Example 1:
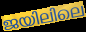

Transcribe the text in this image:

ജയിലിലെ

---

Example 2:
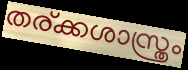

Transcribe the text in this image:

തര്ക്കശാസ്ത്രം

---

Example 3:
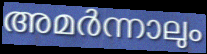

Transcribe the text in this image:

അമർന്നാലും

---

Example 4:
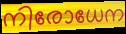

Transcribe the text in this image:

നിരോധേന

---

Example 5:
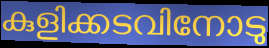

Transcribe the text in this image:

കുളിക്കടവിനോടു